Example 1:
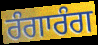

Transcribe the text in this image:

ਰੰਗਾਰੰਗ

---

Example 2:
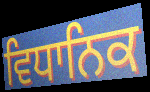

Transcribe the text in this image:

ਵਿਧਾਨਿਕ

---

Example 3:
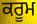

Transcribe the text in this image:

ਕਰੂਮ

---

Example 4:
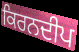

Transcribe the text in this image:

ਕਿਰਨਦੀਪ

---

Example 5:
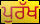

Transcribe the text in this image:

ਪੁਰੱਖ